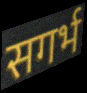
सगर्भ